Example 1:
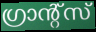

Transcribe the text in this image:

ഗ്രാന്റ്സ്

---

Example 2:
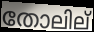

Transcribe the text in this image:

തോലില്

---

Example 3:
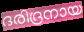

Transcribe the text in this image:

ദരിദ്രനായ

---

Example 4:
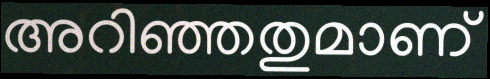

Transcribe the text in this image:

അറിഞ്ഞതുമാണ്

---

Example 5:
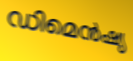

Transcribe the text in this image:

ഡിമെൻഷ്യ